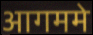
आगममे